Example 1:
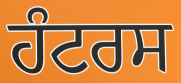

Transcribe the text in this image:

ਹੰਟਰਸ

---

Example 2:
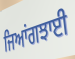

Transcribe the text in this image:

ਜਿਆਂਗਝਾਈ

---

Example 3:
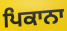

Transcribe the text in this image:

ਪਿਕਾਨਾ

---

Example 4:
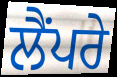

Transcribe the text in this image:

ਲੈਂਪਰੇ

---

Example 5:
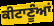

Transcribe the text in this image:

ਕੀਟਾਣੂੰਆਂ